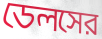
ডেলসের